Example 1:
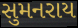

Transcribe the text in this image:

સુમનરાય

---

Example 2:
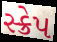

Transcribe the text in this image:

સ્ક્રેપ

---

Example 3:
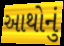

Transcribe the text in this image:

આથોનું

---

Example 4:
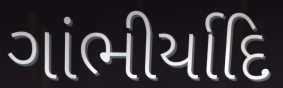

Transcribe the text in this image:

ગાંભીર્યાદિ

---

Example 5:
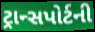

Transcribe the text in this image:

ટ્રાન્સપોર્ટની